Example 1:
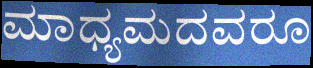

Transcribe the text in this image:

ಮಾಧ್ಯಮದವರೂ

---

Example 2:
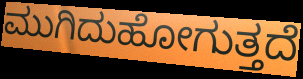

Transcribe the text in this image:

ಮುಗಿದುಹೋಗುತ್ತದೆ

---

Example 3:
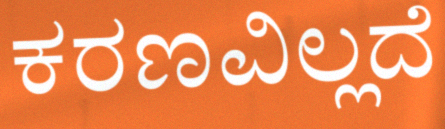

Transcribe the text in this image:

ಕರಣವಿಲ್ಲದೆ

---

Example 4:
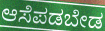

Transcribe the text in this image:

ಆಸೆಪಡಬೇಡ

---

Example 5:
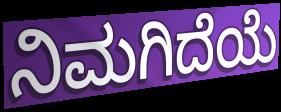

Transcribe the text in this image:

ನಿಮಗಿದೆಯೆ